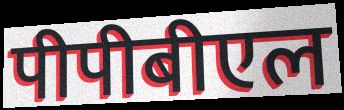
पीपीबीएल